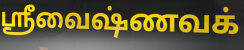
ஸ்ரீவைஷ்ணவக்